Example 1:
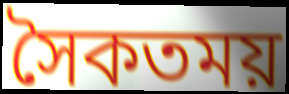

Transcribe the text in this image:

সৈকতময়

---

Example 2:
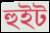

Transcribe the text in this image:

হুইট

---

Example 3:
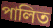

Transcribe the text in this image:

পালিত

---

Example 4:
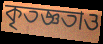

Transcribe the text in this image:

কৃতজ্ঞতাও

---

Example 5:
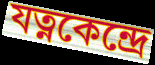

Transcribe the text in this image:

যত্নকেন্দ্রে